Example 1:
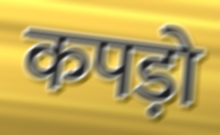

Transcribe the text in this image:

कपड़ो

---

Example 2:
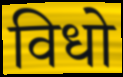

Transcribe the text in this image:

विधो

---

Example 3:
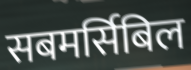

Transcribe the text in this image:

सबमर्सिबिल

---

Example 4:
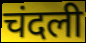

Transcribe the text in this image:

चंदली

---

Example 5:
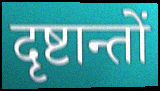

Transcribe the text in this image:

दृष्टान्तों